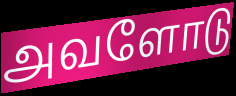
அவளோடு